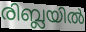
രിബ്ലയിൽ